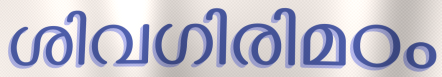
ശിവഗിരിമഠം